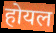
होयल